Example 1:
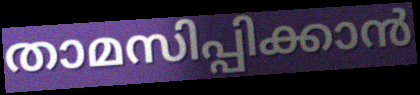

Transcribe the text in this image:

താമസിപ്പിക്കാൻ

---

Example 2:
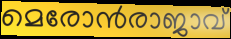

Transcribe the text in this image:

മെരോൻരാജാവ്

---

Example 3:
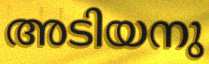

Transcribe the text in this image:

അടിയനു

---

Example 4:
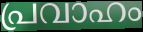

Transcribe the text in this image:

പ്രവാഹം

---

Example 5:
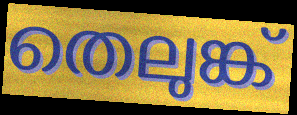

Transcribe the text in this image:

തെലുങ്ക്